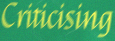
Criticising